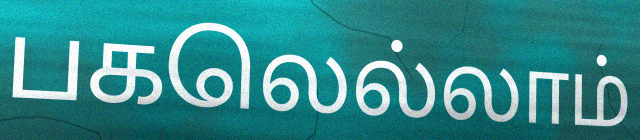
பகலெல்லாம்